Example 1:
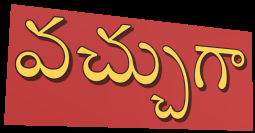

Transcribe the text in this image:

వచ్చుగా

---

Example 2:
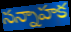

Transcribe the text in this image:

సన్నాహక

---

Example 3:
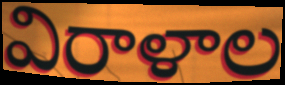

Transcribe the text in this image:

విరాళాల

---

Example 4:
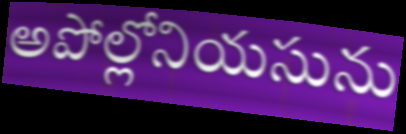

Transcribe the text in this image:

అపోల్లోనియసును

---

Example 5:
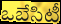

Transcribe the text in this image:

ఒబేసిటీ